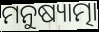
ମନୁଷ୍ୟାତ୍ମା